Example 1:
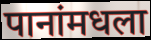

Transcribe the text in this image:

पानांमधला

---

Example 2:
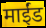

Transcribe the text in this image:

माईंड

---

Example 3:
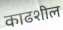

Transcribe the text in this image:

काढशील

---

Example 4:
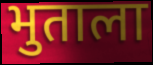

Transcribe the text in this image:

भुताला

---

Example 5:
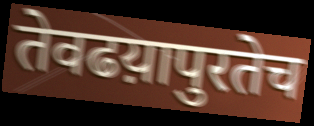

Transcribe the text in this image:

तेवढय़ापुरतेच